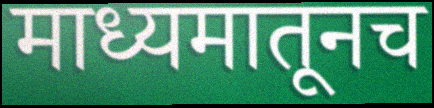
माध्यमातूनच